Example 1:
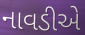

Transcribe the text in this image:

નાવડીએ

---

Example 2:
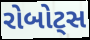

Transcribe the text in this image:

રોબોટ્સ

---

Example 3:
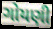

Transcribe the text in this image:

ગોયણી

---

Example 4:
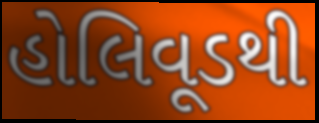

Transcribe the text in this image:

હોલિવૂડથી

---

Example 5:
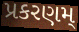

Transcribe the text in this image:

પ્રકરણમ્